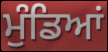
ਮੁੰਡਿਆਂ